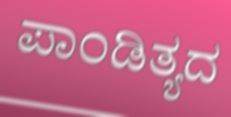
ಪಾಂಡಿತ್ಯದ